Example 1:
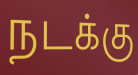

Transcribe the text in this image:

நடக்கு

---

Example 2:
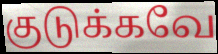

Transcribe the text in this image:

குடுக்கவே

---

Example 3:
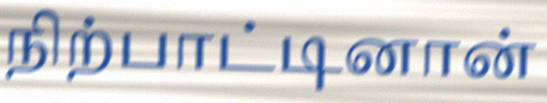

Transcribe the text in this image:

நிற்பாட்டினான்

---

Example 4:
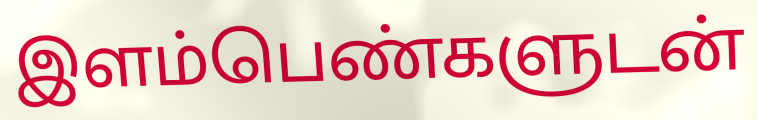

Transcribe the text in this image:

இளம்பெண்களுடன்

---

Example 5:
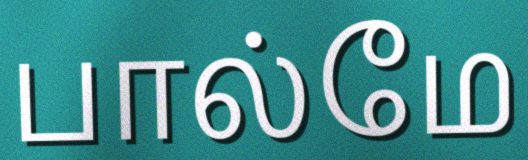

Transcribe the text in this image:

பால்மே